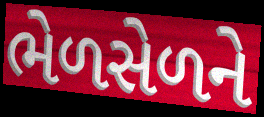
ભેળસેળને